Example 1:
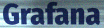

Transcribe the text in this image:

Grafana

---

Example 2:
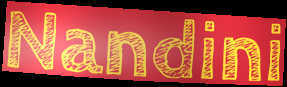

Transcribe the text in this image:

Nandini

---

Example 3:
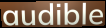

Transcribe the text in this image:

audible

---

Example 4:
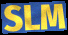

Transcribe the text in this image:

SLM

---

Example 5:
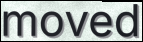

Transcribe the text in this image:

moved